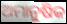
ଅମାନୁଷିକ